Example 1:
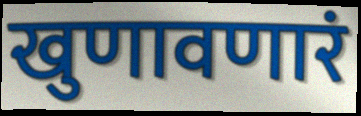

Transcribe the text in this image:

खुणावणारं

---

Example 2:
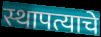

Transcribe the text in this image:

स्थापत्याचे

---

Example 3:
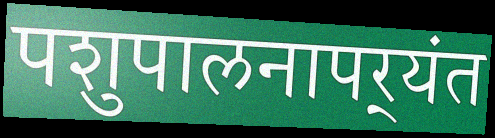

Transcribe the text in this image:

पशुपालनापर्यंत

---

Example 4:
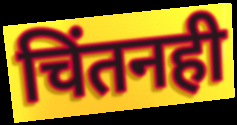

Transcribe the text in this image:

चिंतनही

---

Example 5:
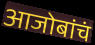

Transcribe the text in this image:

आजोबांचं